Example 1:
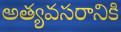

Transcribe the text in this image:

అత్యవసరానికి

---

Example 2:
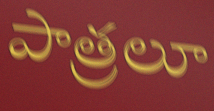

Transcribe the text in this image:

పాత్రలూ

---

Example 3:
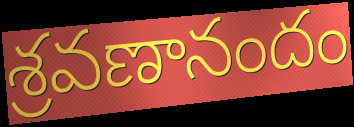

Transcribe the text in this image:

శ్రవణానందం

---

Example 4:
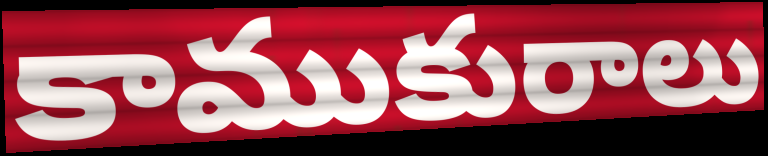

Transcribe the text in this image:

కాముకురాలు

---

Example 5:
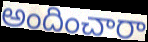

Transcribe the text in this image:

అందించారా